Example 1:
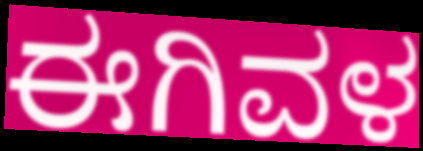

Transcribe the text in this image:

ಈಗಿವಳ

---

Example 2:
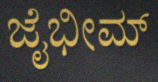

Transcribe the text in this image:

ಜೈಭೀಮ್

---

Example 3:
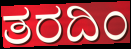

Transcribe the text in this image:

ತರದಿಂ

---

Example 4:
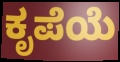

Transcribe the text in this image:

ಕೃಪೆಯೆ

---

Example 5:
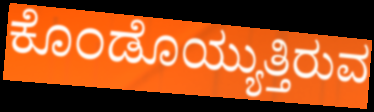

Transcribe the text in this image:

ಕೊಂಡೊಯ್ಯುತ್ತಿರುವ